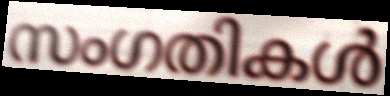
സംഗതികൾ